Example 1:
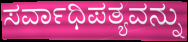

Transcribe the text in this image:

ಸರ್ವಾಧಿಪತ್ಯವನ್ನು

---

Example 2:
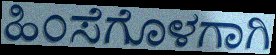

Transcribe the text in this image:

ಹಿಂಸೆಗೊಳಗಾಗಿ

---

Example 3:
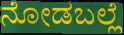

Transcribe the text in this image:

ನೋಡಬಲ್ಲೆ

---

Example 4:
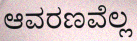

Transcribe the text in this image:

ಆವರಣವೆಲ್ಲ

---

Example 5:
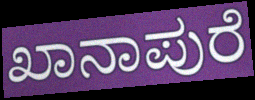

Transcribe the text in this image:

ಖಾನಾಪುರೆ